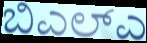
ಬಿಎಲ್ಎ